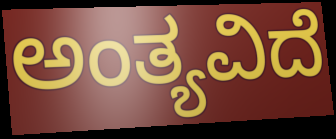
ಅಂತ್ಯವಿದೆ